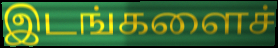
இடங்களைச்